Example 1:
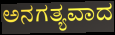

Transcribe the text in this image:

ಅನಗತ್ಯವಾದ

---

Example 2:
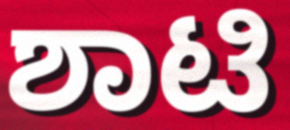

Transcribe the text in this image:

ಶಾಟಿ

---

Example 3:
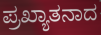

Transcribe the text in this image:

ಪ್ರಖ್ಯಾತನಾದ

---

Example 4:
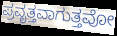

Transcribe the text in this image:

ಪ್ರವೃತ್ತವಾಗುತ್ತವೋ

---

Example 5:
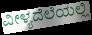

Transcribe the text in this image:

ವೀಳ್ಯದೆಲೆಯಲ್ಲಿ